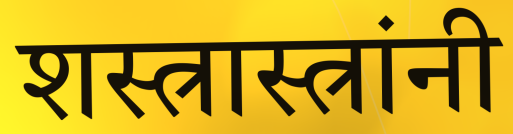
शस्त्रास्त्रांनी